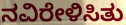
ನವಿರೇಳಿಸಿತು